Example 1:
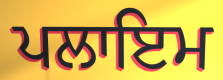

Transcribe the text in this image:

ਪਲਾਇਮ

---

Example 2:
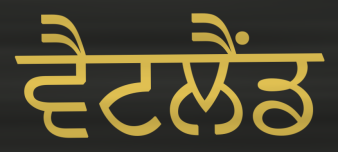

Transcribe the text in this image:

ਵੈਟਲੈਂਡ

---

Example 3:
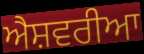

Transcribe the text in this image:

ਐਸ਼ਵਰੀਆ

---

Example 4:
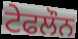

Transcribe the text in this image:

ਟੇਫਲੌਨ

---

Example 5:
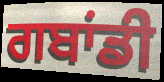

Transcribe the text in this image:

ਗਬਾਂਡੀ